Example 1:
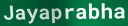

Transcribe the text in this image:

Jayaprabha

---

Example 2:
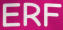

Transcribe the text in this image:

ERF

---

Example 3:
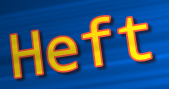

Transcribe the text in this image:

Heft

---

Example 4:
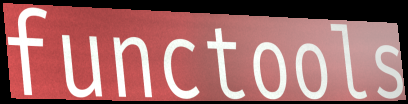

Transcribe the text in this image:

functools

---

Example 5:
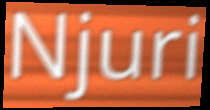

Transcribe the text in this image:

Njuri